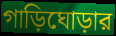
গাড়িঘোড়ার